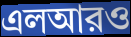
এলআরও